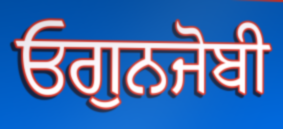
ਓਗੁਨਜੋਬੀ